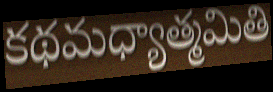
కథమధ్యాత్మమితి